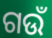
ଗଉଁ